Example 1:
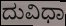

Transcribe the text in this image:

ದುವಿಧಾ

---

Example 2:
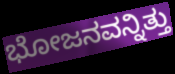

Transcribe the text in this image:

ಭೋಜನವನ್ನಿತ್ತು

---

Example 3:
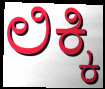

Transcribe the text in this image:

ಲಿಕ್ಕಿ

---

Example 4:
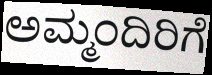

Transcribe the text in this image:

ಅಮ್ಮಂದಿರಿಗೆ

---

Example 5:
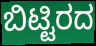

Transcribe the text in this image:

ಬಿಟ್ಟಿರದ